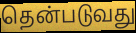
தென்படுவது